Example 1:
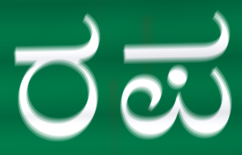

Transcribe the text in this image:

ರಪ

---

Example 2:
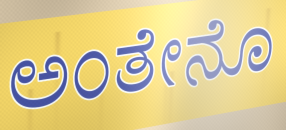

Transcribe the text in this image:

ಅಂತೇನೊ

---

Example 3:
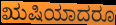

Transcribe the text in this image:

ಋಷಿಯಾದರೂ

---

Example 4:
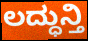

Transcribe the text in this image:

ಲದ್ಧುನ್ತಿ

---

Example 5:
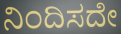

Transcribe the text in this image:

ನಿಂದಿಸದೇ